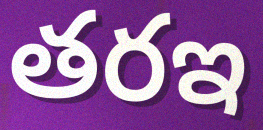
తరఇ